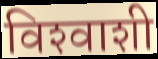
विश्वाशी